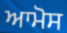
ਆਮੋਸ